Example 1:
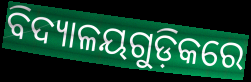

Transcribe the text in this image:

ବିଦ୍ୟାଳୟଗୁଡ଼ିକରେ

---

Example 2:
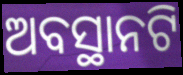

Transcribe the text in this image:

ଅବସ୍ଥାନଟି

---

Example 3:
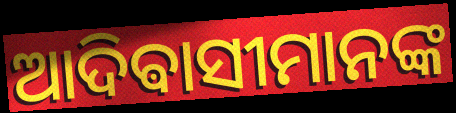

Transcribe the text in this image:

ଆଦିଵାସୀମାନଙ୍କ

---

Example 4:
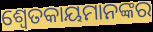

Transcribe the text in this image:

ଶ୍ବେତକାୟମାନଙ୍କର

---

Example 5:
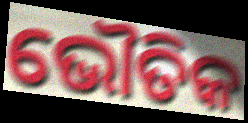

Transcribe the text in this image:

ଭୌତିକ